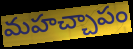
మహచ్చాపం